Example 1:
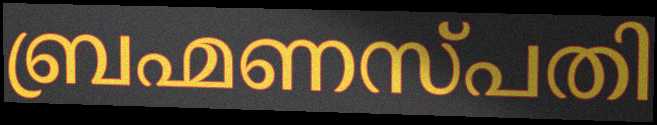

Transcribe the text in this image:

ബ്രഹ്മണസ്പതി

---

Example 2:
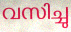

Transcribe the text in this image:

വസിച്ചു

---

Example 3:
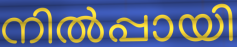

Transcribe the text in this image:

നിൽപ്പായി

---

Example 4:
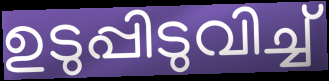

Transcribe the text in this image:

ഉടുപ്പിടുവിച്ച്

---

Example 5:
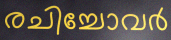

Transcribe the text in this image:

രചിച്ചോവർ